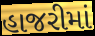
હાજરીમાં